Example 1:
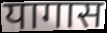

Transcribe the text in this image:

यागास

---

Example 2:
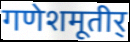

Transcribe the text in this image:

गणेशमूतीर्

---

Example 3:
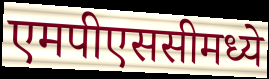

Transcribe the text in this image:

एमपीएससीमध्ये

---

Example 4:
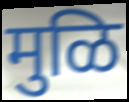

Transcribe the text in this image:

मुळि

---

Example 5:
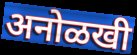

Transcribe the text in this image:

अनोळखी